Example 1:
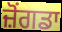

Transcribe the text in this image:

ਜ਼ੋਂਗਡਾ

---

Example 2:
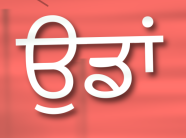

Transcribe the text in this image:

ਉਡਾਂ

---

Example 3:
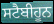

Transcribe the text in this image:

ਸਟੈਬੀਹੂਨ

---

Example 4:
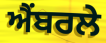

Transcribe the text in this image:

ਐਂਬਰਲੇ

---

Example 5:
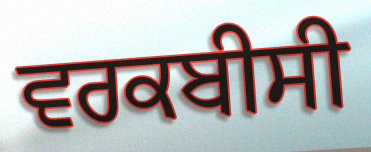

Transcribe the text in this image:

ਵਰਕਬੀਸੀ